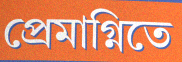
প্রেমাগ্নিতে